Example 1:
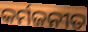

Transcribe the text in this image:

କର୍ମଜନୀତ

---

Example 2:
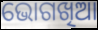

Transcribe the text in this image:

ଭୋଗଖିଆ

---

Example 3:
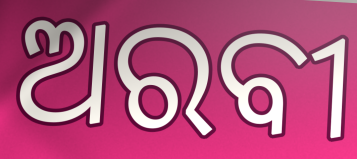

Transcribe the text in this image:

ଅରବୀ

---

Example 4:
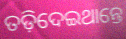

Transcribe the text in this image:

ତଡ଼ିଦେଇଥାନ୍ତେ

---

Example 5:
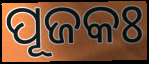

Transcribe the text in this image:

ପୂଜକଃ